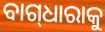
ବାଗ୍‌ଧାରାକୁ